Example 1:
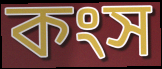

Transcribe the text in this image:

কংস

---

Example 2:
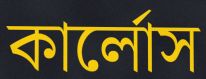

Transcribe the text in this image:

কার্লোস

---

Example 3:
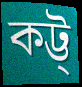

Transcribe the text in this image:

কট্ট্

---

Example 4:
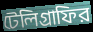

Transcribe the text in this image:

টেলিগ্রাফির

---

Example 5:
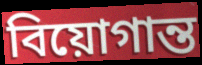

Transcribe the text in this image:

বিয়োগান্ত